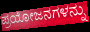
ಪ್ರಯೋಜನಗಳನ್ನು